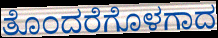
ತೊಂದರೆಗೊಳಗಾದ